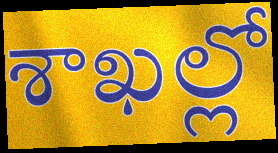
శాఖల్లో